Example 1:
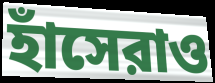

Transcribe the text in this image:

হাঁসেরাও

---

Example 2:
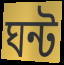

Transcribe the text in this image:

ঘন্ট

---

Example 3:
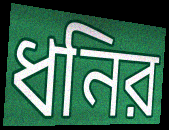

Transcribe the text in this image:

ধনির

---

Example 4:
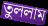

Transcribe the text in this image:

তুললাম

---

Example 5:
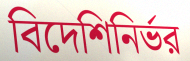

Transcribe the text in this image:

বিদেশিনির্ভর